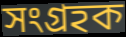
সংগ্ৰহক